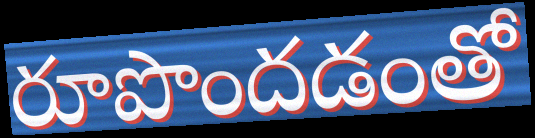
రూపొందడంతో